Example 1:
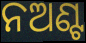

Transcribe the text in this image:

ନଅଣ୍ଟ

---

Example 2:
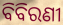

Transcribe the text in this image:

ବିବିରଣୀ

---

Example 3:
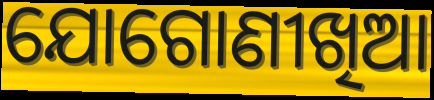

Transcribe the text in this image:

ଯୋଗୋଣୀଖିଆ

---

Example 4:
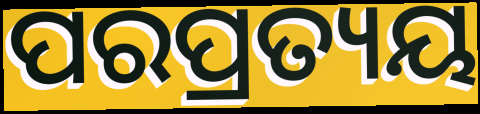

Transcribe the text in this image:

ପରପ୍ରତ୍ୟୟ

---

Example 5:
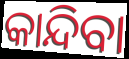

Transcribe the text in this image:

କାନ୍ଦିବା